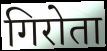
गिरोता